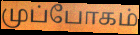
முப்போகம்